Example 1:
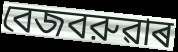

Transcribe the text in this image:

বেজবৰুৱাৰ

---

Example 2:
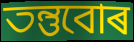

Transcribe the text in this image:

তন্তুবোৰ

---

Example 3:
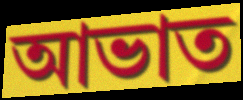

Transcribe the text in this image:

আভাত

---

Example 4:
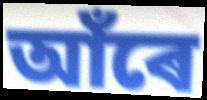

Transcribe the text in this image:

আঁৰে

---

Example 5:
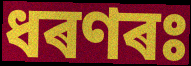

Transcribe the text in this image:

ধৰণৰঃ